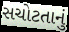
સચોટતાનું